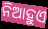
ନିଆହୁଏ